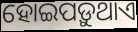
ହୋଇପଡ଼ୁଥାଏ